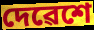
দেৱেশে